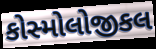
કોસ્મોલોજીકલ